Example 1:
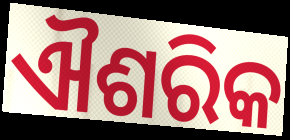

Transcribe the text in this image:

ଐଶରିକ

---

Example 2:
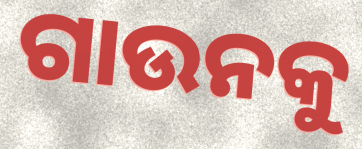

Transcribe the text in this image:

ଗାଉନକୁ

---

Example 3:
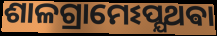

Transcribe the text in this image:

ଶାଳଗ୍ରାମେଽପ୍ଯଥଵା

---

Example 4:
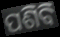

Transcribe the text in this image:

ପଶିବି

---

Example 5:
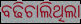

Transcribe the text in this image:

ବଢିଚାଲିଥିଲା